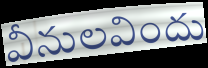
వీనులవిందు